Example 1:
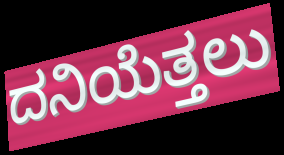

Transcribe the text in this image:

ದನಿಯೆತ್ತಲು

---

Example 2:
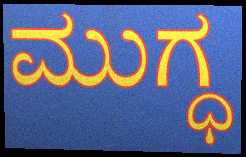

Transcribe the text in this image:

ಮುಗ್ಧ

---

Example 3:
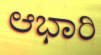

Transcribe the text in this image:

ಆಭಾರಿ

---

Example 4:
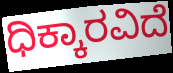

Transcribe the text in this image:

ಧಿಕ್ಕಾರವಿದೆ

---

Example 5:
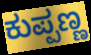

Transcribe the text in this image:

ಕುಪ್ಪಣ್ಣ